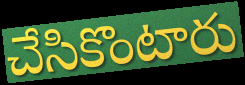
చేసికొంటారు